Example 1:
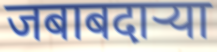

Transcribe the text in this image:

जबाबदार्‍या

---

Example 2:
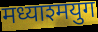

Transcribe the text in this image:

मध्याश्मयुग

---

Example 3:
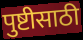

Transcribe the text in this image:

पुष्टीसाठी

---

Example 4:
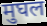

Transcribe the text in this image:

मुघल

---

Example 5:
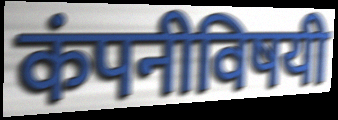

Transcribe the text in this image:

कंपनीविषयी